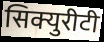
सिक्युरीटी